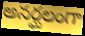
అనర్ఘలంగా